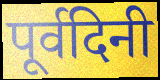
पूर्वदिनी